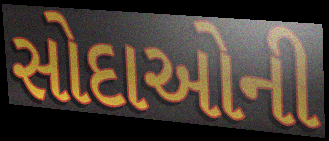
સોદાઓની